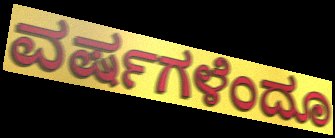
ವರ್ಷಗಳೆಂದೂ